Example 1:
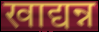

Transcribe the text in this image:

खाद्यन्न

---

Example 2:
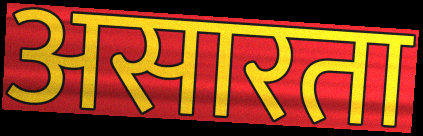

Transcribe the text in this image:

असारता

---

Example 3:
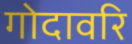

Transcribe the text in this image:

गोदावरि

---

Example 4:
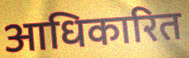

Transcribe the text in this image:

आधिकारित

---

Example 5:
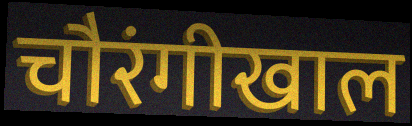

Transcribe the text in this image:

चौरंगीखाल